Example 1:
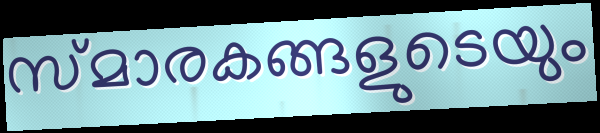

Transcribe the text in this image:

സ്മാരകങ്ങളുടെയും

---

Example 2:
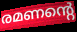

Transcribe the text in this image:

രമണന്റെ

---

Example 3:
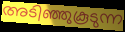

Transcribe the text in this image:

അടിഞ്ഞുകൂടുന്ന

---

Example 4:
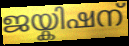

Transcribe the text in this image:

ജയ്കിഷന്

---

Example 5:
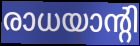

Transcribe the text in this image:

രാധയാന്റി